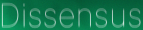
Dissensus